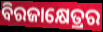
ବିରଜାକ୍ଷେତ୍ରର